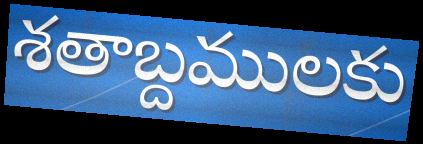
శతాబ్దములకు